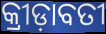
କ୍ରୀଡ଼ାବତୀ